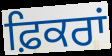
ਫ਼ਿਕਰਾਂ